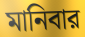
মানিবার